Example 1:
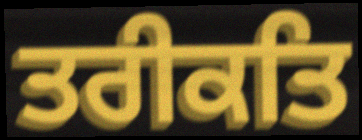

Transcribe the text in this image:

ਤਰੀਕਤਿ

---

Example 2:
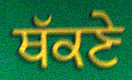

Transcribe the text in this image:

ਥੱਕਣੇ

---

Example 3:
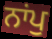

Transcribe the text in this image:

ਨਾਂਪੁ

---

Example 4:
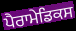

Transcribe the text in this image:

ਪੈਰਾਮੇਡਿਕਸ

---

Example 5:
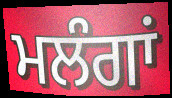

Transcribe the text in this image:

ਮਲੰਗਾਂ